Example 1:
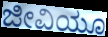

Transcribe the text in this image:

ಜೀವಿಯೂ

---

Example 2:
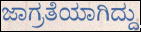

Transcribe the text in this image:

ಜಾಗ್ರತೆಯಾಗಿದ್ದು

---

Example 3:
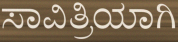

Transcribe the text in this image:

ಸಾವಿತ್ರಿಯಾಗಿ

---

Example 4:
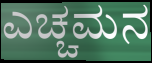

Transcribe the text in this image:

ಎಚ್ಚಮನ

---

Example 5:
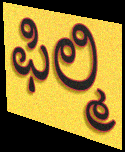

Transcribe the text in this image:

ಫಿಲ್ಮಿ